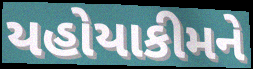
યહોયાકીમને